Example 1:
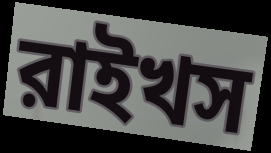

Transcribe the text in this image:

রাইখস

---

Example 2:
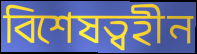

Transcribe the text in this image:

বিশেষত্বহীন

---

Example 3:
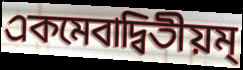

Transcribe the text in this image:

একমেবাদ্বিতীয়ম্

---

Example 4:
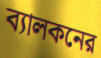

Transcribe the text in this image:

ব্যালকনের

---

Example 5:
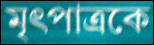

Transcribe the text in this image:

মৃৎপাত্রকে